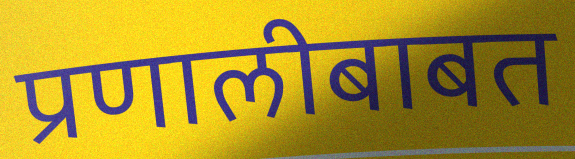
प्रणालीबाबत